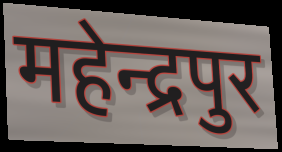
महेन्द्रपुर